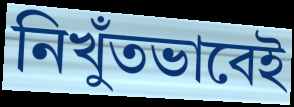
নিখুঁতভাবেই